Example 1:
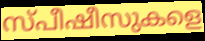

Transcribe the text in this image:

സ്പീഷീസുകളെ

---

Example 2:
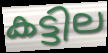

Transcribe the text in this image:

കട്ടില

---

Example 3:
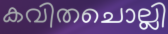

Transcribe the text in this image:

കവിതചൊല്ലി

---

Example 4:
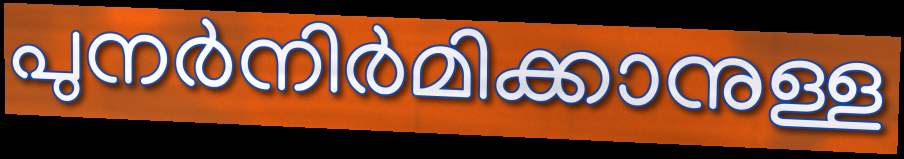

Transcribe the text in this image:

പുനർനിർമിക്കാനുള്ള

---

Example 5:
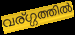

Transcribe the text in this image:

വര്ഗ്ഗത്തിൽ